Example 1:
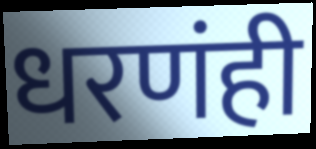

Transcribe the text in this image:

धरणंही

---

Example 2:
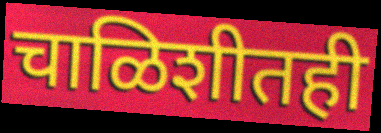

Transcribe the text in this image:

चाळिशीतही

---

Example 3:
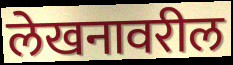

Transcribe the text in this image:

लेखनावरील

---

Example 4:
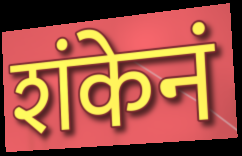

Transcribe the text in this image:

शंकेनं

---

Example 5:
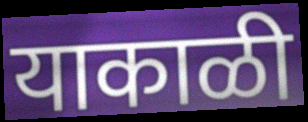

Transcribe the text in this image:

याकाळी